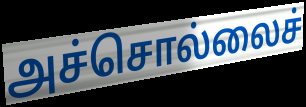
அச்சொல்லைச்